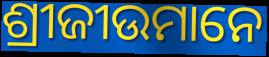
ଶ୍ରୀଜୀଉମାନେ